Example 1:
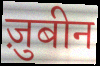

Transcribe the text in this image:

ज़ुबीन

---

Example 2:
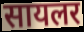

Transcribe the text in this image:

सायलर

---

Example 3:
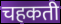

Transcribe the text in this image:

चहकती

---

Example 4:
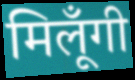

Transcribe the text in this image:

मिलूँगी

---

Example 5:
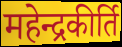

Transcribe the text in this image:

महेन्द्रकीर्ति